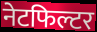
नेटफिल्टर